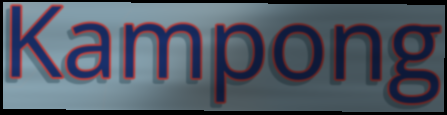
Kampong